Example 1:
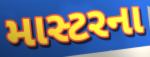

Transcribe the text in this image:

માસ્ટરના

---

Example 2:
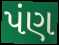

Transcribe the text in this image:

પંણ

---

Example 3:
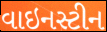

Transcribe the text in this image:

વાઇનસ્ટીન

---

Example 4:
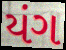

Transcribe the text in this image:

યંગ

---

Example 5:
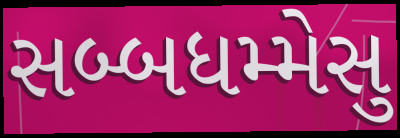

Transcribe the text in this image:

સબ્બધમ્મેસુ